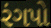
રંગપો